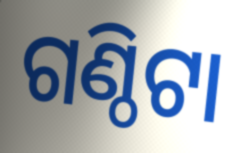
ଗଣ୍ଠିଟା